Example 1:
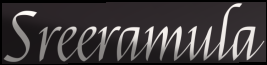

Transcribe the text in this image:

Sreeramula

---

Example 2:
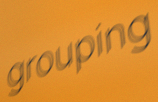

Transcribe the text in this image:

grouping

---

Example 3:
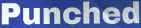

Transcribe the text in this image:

Punched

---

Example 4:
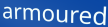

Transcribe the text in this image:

armoured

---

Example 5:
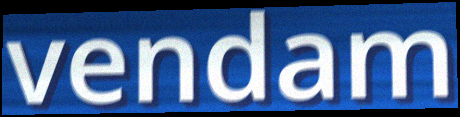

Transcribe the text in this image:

vendam